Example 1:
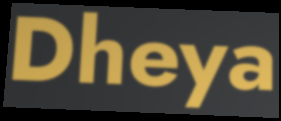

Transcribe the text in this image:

Dheya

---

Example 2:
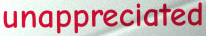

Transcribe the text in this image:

unappreciated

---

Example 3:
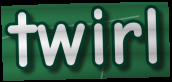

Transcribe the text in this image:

twirl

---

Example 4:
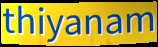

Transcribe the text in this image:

thiyanam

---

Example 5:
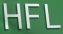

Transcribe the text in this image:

HFL